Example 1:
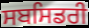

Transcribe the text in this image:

ਸਬਸਿਡਰੀ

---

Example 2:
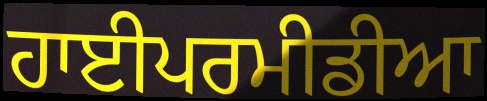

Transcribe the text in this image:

ਹਾਈਪਰਮੀਡੀਆ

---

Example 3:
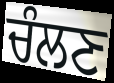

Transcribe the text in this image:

ਚੰਲਣ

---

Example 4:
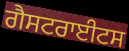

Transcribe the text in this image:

ਗੈਸਟਰਾਈਟਸ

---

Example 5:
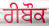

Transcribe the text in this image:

ਰੀਬੌਕ